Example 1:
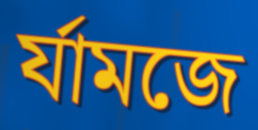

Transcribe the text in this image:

র্যামজে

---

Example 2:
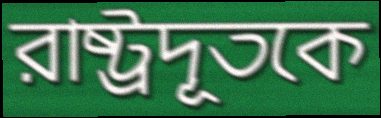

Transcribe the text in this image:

রাষ্ট্রদূতকে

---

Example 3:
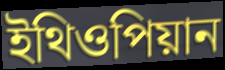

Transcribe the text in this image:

ইথিওপিয়ান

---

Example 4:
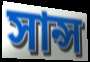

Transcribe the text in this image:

সান্স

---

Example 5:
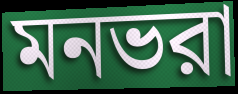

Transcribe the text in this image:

মনভরা